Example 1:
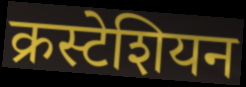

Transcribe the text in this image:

क्रस्टेशियन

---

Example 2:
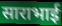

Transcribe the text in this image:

साराभाई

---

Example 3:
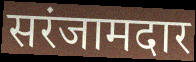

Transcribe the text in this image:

सरंजामदार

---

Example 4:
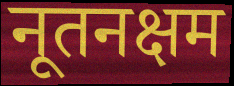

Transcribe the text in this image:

नूतनक्षम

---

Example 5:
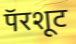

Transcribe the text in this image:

पॅरशूट